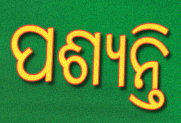
ପଶ୍ୟନ୍ତି